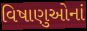
વિષાણુઓનાં